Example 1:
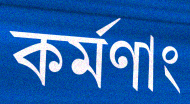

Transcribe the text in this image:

কর্মণাং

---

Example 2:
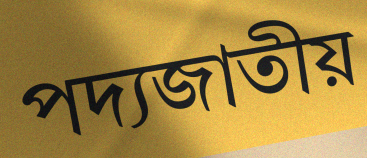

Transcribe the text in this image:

পদ্যজাতীয়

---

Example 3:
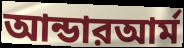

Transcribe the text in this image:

আন্ডারআর্ম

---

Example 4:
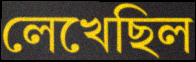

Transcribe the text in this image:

লেখেছিল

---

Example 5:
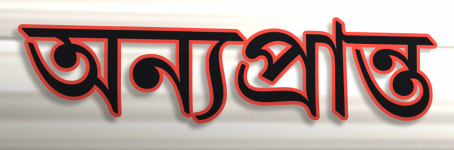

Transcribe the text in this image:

অন্যপ্রান্ত